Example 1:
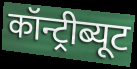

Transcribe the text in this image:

कॉन्ट्रीब्यूट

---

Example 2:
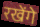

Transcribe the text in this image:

रखेंगे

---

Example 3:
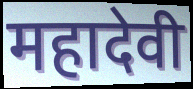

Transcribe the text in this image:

महादेवी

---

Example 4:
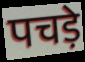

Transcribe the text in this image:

पचड़े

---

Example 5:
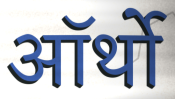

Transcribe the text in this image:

ऑर्थो